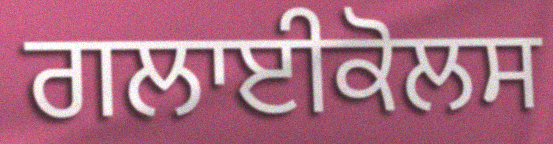
ਗਲਾਈਕੋਲਸ